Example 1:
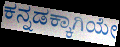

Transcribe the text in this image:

ಕನ್ನಡಕ್ಕಾಗಿಯೇ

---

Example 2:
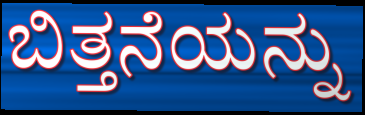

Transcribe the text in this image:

ಬಿತ್ತನೆಯನ್ನು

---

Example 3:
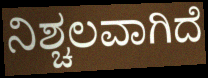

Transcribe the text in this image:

ನಿಶ್ಚಲವಾಗಿದೆ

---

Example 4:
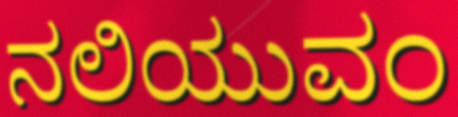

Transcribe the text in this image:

ನಲಿಯುವಂ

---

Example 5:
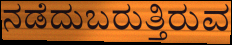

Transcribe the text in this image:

ನಡೆದುಬರುತ್ತಿರುವ